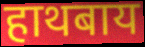
हाथबाय